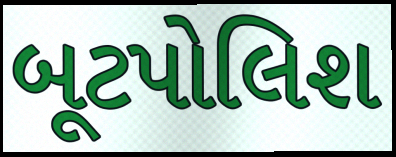
બૂટપોલિશ